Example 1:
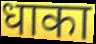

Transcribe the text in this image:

धाका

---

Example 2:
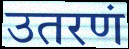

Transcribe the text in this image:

उतरणं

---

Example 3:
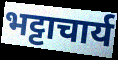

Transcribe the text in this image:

भट्टाचार्य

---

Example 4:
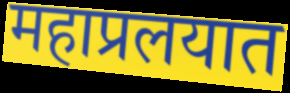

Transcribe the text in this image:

महाप्रलयात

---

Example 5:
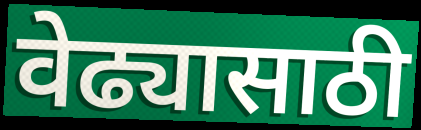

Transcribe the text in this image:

वेढ्यासाठी